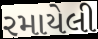
રમાયેલી